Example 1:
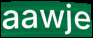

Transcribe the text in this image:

aawje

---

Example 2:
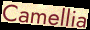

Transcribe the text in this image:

Camellia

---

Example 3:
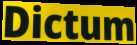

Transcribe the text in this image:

Dictum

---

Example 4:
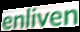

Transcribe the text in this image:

enliven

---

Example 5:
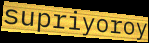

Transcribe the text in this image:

supriyoroy